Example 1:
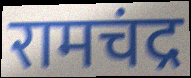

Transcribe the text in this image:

रामचंद्र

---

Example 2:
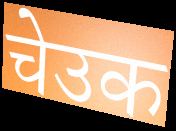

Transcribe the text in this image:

चेउक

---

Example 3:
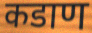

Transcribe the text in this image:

कडाण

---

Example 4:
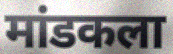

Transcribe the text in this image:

मांडकला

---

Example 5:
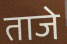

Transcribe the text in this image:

ताजे